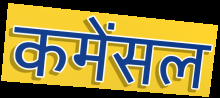
कमेंसल